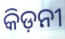
କିଡ଼ନୀ